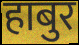
हाबुर